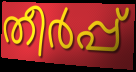
തീർപ്പ്